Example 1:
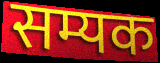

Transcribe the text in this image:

सम्‍यक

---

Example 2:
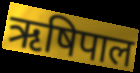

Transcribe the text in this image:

ऋषिपाल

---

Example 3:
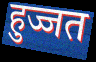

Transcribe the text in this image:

हुज्जत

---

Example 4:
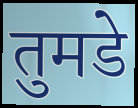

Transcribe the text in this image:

तुमडे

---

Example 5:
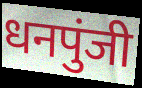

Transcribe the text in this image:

धनपुंजी